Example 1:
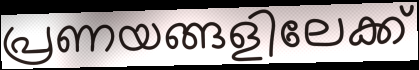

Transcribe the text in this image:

പ്രണയങ്ങളിലേക്ക്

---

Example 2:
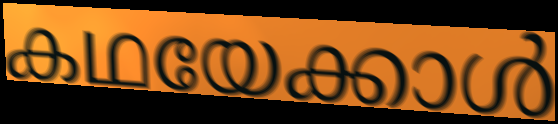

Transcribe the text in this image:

കഥയേക്കാൾ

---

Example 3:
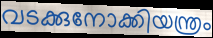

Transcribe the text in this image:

വടക്കുനോക്കിയന്ത്രം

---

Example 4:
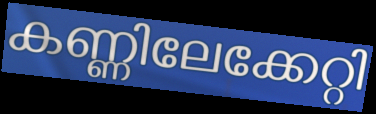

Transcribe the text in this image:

കണ്ണിലേക്കേറ്റി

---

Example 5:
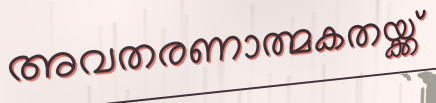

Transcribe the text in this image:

അവതരണാത്മകതയ്ക്ക്